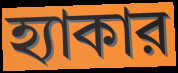
হ্যাকার